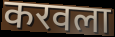
करवला